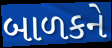
બાળકને